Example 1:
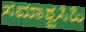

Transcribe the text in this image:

ಸಮಾಶ್ವಸಿಹಿ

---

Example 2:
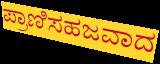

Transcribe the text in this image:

ಪ್ರಾಣಿಸಹಜವಾದ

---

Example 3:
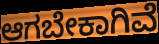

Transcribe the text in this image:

ಆಗಬೇಕಾಗಿವೆ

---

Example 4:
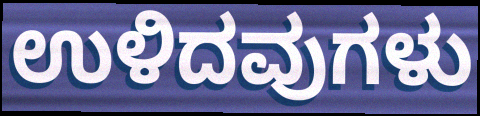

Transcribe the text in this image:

ಉಳಿದವುಗಳು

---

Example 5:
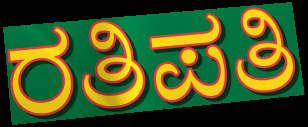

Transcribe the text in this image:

ರತಿಪತಿ